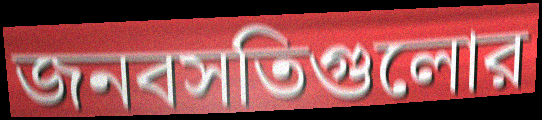
জনবসতিগুলোর